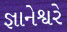
જ્ઞાનેશ્વરે